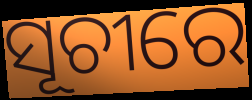
ସୂଚୀରେ